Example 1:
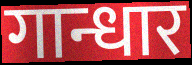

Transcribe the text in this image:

गान्धार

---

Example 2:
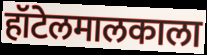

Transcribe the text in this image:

हॉटेलमालकाला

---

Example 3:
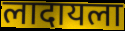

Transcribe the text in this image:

लादायला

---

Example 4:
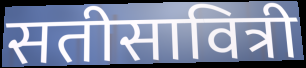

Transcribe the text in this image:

सतीसावित्री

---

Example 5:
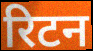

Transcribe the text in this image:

रिटन